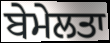
ਬੇਮੇਲਤਾ